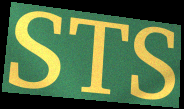
STS